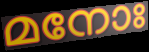
മനോഃ